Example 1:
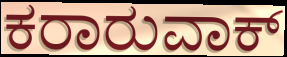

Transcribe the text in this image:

ಕರಾರುವಾಕ್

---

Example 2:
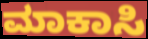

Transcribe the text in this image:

ಮಾಕಾಸಿ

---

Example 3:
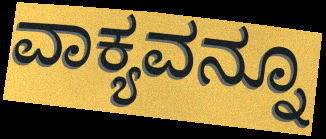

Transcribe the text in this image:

ವಾಕ್ಯವನ್ನೂ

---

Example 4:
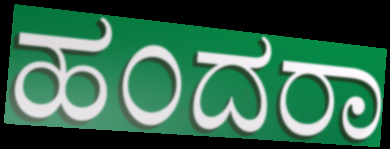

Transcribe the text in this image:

ಹಂದರಾ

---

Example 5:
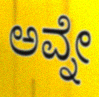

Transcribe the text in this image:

ಅವ್ನೇ